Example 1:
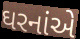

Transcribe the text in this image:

ઘરનાંએ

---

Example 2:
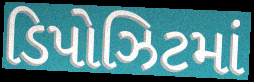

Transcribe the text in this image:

ડિપોઝિટમાં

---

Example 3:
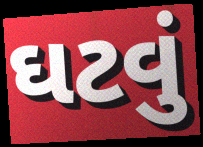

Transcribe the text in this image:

ઘટવું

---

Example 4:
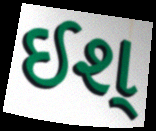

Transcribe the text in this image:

ઈશ્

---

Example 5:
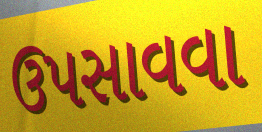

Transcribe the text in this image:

ઉપસાવવા